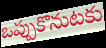
ఒప్పుకొనుటకు